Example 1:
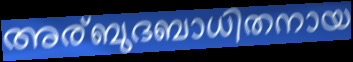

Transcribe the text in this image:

അര്ബുദബാധിതനായ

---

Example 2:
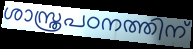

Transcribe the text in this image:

ശാസ്ത്രപഠനത്തിന്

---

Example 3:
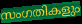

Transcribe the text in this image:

സംഗതികളും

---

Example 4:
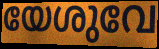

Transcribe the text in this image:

യേശുവേ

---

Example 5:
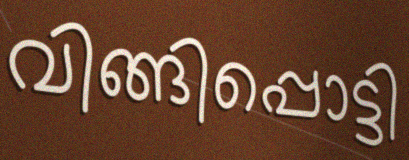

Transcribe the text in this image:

വിങ്ങിപ്പൊട്ടി